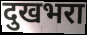
दुखभरा